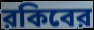
রকিবের